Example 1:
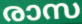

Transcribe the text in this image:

രാസ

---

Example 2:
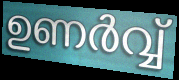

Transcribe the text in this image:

ഉണർവ്വ്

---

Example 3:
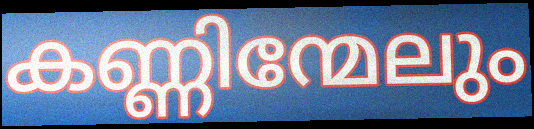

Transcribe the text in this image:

കണ്ണിന്മേലും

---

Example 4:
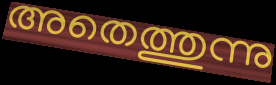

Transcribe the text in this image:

അതെത്തുന്നു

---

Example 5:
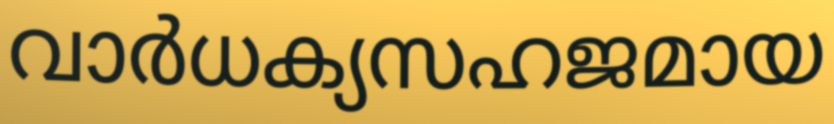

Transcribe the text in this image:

വാർധക്യസഹജമായ